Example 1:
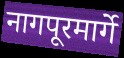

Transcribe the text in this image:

नागपूरमार्गे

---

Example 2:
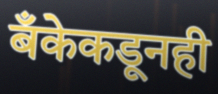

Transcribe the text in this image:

बँकेकडूनही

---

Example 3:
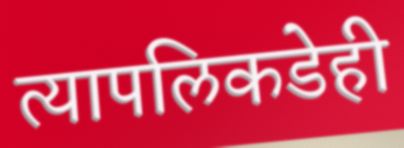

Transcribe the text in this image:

त्यापलिकडेही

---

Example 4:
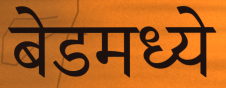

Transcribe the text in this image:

बेडमध्ये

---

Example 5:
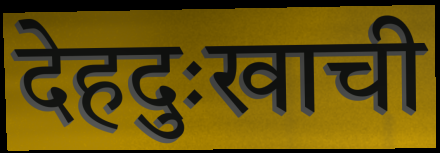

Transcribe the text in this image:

देहदुःखाची